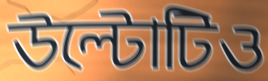
উল্টোটিও